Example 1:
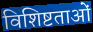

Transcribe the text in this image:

विशिष्टताओं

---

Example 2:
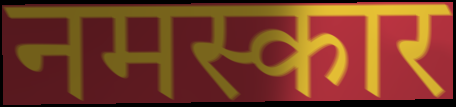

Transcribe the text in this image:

नमस्कार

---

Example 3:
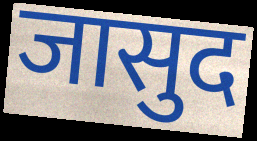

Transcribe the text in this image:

जासुद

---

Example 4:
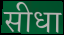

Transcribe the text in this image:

सीधा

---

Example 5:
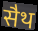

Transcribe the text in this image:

सैथ